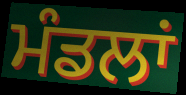
ਮੰਡਲਾਂ